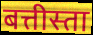
बत्तीस्ता